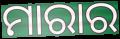
ମାରାର